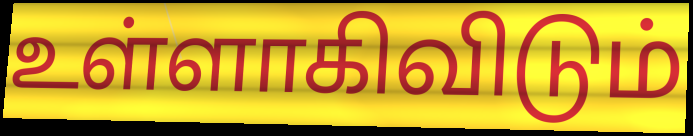
உள்ளாகிவிடும்